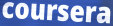
coursera